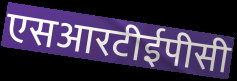
एसआरटीईपीसी